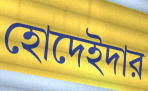
হোদেইদার